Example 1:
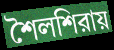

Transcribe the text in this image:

শৈলশিরায়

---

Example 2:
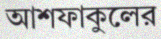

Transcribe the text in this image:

আশফাকুলের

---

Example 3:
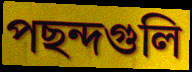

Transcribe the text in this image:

পছন্দগুলি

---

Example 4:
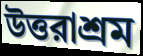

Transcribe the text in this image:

উত্তরাশ্রম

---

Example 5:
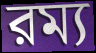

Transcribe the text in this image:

রম্য